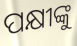
ପକ୍ଷୀଙ୍କୁ